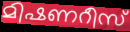
മിഷണറീസ്